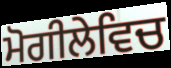
ਮੋਗੀਲੇਵਿਚ